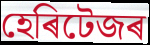
হেৰিটেজৰ